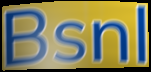
Bsnl